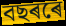
বছৰৰে